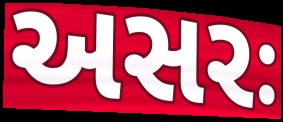
અસરઃ